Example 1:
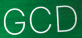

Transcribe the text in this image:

GCD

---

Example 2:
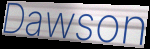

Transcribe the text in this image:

Dawson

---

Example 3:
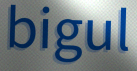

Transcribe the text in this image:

bigul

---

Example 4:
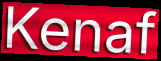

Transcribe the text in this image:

Kenaf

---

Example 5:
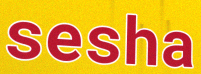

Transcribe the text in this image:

sesha